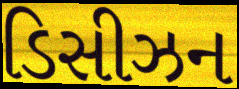
ડિસીઝન